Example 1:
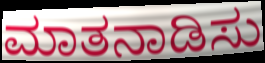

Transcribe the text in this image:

ಮಾತನಾಡಿಸು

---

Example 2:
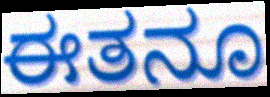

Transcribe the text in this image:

ಈತನೂ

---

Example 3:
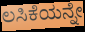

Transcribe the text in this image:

ಲಸಿಕೆಯನ್ನೇ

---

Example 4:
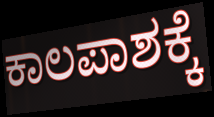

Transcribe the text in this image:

ಕಾಲಪಾಶಕ್ಕೆ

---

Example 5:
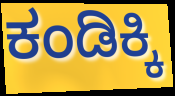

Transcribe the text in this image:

ಕಂಡಿಕ್ಕಿ